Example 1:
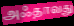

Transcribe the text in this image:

அஃதாவது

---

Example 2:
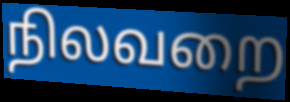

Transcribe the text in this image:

நிலவறை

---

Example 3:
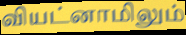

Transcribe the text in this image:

வியட்னாமிலும்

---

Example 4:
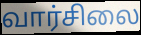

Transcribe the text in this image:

வார்சிலை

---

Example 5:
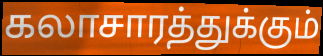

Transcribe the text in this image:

கலாசாரத்துக்கும்